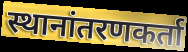
स्थानांतरणकर्ता